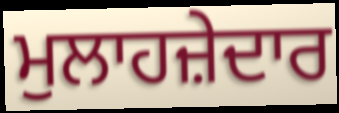
ਮੁਲਾਹਜ਼ੇਦਾਰ